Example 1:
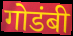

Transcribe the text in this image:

गोडंबी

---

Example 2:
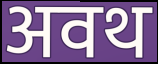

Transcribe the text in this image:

अवथ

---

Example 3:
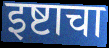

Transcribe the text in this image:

इष्टाचा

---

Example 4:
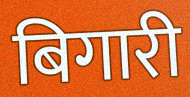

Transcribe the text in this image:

बिगारी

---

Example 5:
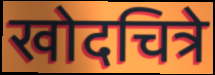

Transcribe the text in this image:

खोदचित्रे